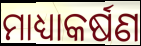
ମାଧ୍ୟାକର୍ଷଣ